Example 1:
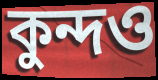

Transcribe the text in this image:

কুন্দও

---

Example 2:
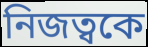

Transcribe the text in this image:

নিজত্বকে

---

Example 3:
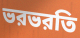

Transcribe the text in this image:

ভরভরতি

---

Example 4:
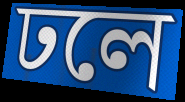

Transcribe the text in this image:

ঢলে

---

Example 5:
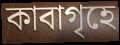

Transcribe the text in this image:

কাবাগৃহে